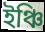
ইঞ্চি